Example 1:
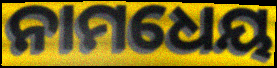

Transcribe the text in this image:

ନାମଧେୟ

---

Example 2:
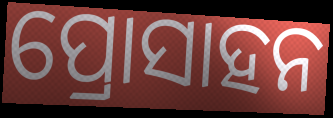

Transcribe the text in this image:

ପ୍ରୋସାହନ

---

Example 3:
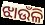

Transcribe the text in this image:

ଝାଉଁଳି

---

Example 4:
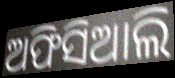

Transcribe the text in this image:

ଅଫିସିଆଲି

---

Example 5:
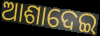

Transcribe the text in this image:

ଆଶାଦେଇ